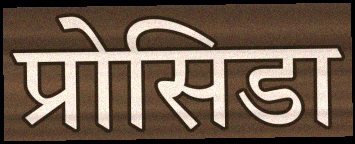
प्रोसिडा